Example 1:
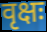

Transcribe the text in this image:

वृक्षः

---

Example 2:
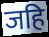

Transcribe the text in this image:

जहि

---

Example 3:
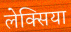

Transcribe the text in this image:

लेक्सिया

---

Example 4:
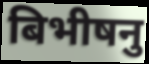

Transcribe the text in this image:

बिभीषनु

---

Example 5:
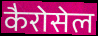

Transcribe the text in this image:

कैरोसेल